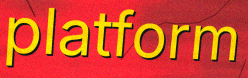
platform